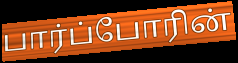
பார்ப்போரின்